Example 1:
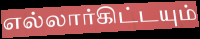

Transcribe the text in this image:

எல்லார்கிட்டயும்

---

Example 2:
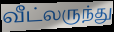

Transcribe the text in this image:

வீட்லருந்து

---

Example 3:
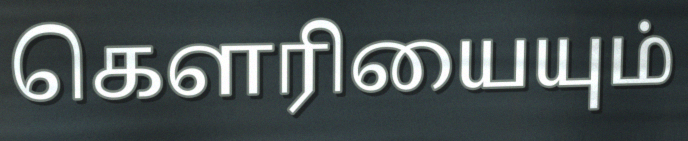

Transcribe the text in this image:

கௌரியையும்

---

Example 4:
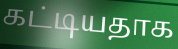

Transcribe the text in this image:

கட்டியதாக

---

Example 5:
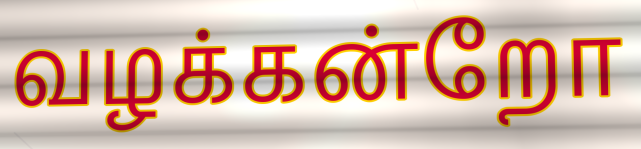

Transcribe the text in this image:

வழக்கன்றோ